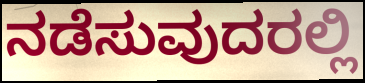
ನಡೆಸುವುದರಲ್ಲಿ